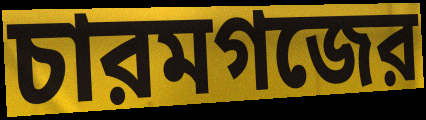
চারমগজের